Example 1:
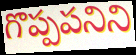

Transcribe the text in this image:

గొప్పపనిని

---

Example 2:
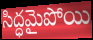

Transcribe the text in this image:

సిద్ధమైపోయి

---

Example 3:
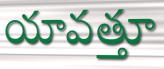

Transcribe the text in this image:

యావత్తూ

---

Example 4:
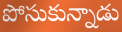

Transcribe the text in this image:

పోసుకున్నాడు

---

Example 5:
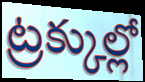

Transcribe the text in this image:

ట్రక్కుల్లో